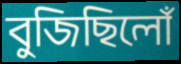
বুজিছিলোঁ